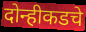
दोन्हीकडचे